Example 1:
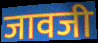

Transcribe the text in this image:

जावजी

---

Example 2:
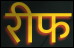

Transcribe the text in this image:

रीफ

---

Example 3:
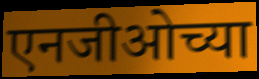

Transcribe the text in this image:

एनजीओच्या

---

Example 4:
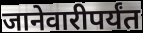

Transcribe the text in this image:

जानेवारीपर्यंत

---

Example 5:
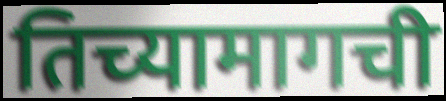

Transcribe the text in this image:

तिच्यामागची